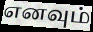
எனவும்